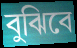
বুঝিবে